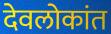
देवलोकांत